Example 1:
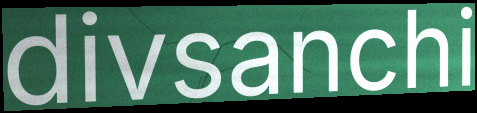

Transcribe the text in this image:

divsanchi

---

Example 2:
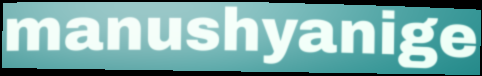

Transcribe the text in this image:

manushyanige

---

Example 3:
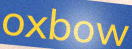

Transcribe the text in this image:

oxbow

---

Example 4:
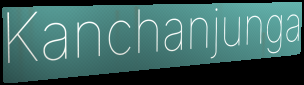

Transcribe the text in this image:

Kanchanjunga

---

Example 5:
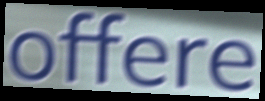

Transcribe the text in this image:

offere